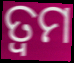
ତ୍ୱମ